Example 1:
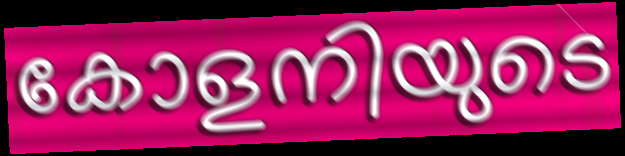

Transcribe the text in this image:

കോളനിയുടെ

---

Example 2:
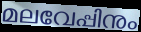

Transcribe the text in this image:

മലവേപ്പിനും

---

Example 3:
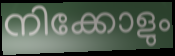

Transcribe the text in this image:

നിക്കോളും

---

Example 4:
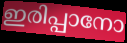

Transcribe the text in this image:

ഇരിപ്പാനോ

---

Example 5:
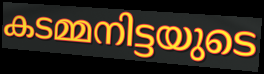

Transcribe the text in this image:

കടമ്മനിട്ടയുടെ